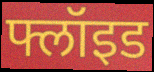
फ्लॉइड